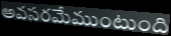
అవసరమేముంటుంది